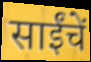
साईंचें